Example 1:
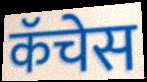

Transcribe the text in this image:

कॅचेस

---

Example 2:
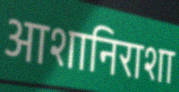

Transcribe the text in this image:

आशानिराशा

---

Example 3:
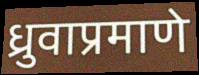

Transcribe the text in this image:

ध्रुवाप्रमाणे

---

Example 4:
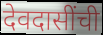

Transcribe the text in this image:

देवदासींची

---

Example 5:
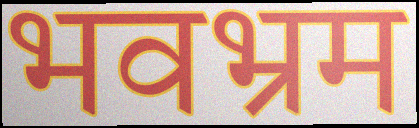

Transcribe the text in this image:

भवभ्रम